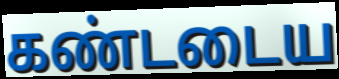
கண்டடைய